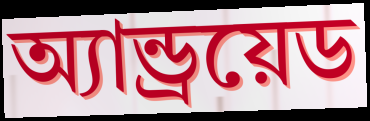
অ্যান্ড্রয়েড